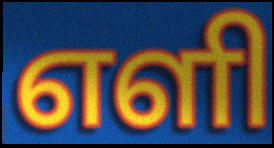
எளி